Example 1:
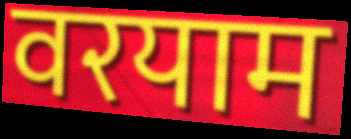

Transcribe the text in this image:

वरयाम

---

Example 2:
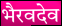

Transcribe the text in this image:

भैरवदेव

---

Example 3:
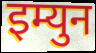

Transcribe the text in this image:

इम्‍युन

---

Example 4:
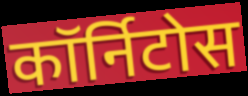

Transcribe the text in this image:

कॉर्निटोस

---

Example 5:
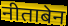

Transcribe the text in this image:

नीताबेन